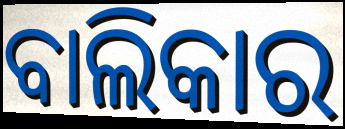
ବାଲିକାର